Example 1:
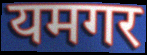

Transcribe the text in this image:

यमगर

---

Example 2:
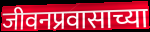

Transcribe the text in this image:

जीवनप्रवासाच्या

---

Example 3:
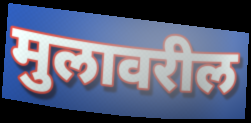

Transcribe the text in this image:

मुलावरील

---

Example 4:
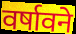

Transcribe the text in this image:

वर्षावने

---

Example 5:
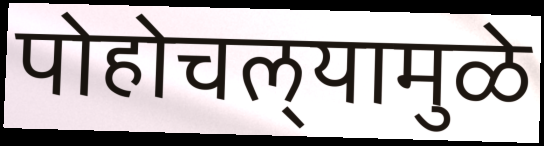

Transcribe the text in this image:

पोहोचल्यामुळे